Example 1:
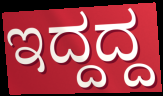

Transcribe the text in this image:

ಇದ್ದದ್ದ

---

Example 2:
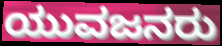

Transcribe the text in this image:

ಯುವಜನರು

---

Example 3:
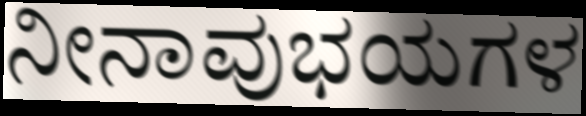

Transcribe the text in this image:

ನೀನಾವುಭಯಗಳ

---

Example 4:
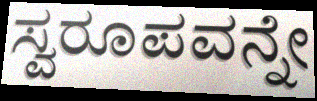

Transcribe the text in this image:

ಸ್ವರೂಪವನ್ನೇ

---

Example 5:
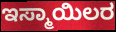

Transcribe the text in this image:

ಇಸ್ಮಾಯಿಲರ